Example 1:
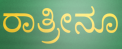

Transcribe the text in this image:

ರಾತ್ರೀನೂ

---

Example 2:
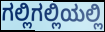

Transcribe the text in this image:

ಗಲ್ಲಿಗಲ್ಲಿಯಲ್ಲಿ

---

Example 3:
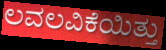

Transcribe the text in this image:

ಲವಲವಿಕೆಯಿತ್ತು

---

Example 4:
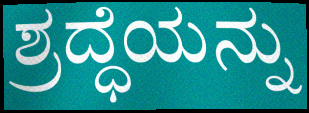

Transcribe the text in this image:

ಶ್ರದ್ಧೆಯನ್ನು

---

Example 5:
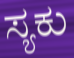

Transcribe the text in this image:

ಸ್ಯಕು